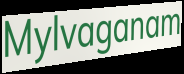
Mylvaganam